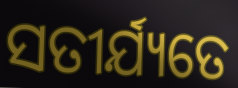
ସତୀର୍ଯ୍ୟତେ